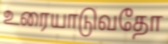
உரையாடுவதோ